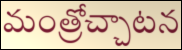
మంత్రోచ్చాటన